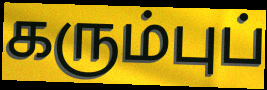
கரும்புப்